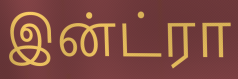
இன்ட்ரா